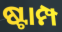
ଷ୍ଟାମ୍ପ